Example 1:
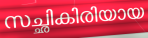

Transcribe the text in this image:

സച്ഛികിരിയായ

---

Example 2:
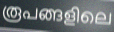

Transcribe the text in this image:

രൂപങ്ങളിലെ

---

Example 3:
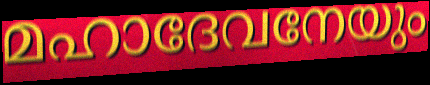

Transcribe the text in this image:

മഹാദേവനേയും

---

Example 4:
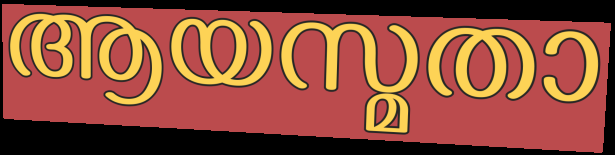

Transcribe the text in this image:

ആയസ്മതാ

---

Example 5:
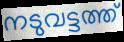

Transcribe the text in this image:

നടുവട്ടത്ത്